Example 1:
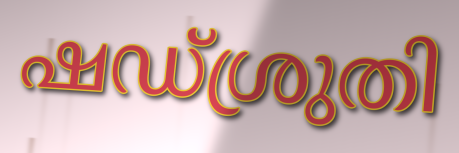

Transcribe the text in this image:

ഷഡ്ശ്രുതി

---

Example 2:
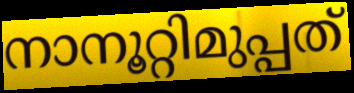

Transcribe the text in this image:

നാനൂറ്റിമുപ്പത്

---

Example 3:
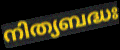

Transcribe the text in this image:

നിത്യബദ്ധഃ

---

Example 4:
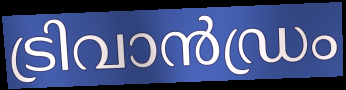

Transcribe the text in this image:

ട്രിവാൻഡ്രം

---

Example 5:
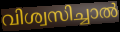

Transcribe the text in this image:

വിശ്വസിച്ചാൽ